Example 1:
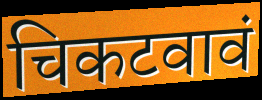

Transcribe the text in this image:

चिकटवावं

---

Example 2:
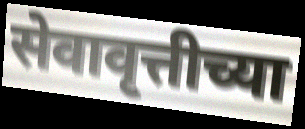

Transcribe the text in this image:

सेवावृत्तीच्या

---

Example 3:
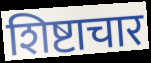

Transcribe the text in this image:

शिष्टाचार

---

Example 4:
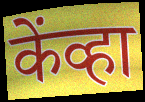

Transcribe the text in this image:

केंव्हा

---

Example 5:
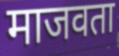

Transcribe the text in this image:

माजवता